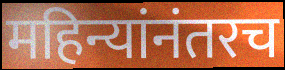
महिन्यांनंतरच